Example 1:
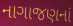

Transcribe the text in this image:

નાગાજણનાં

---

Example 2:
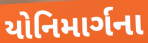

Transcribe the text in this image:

યોનિમાર્ગના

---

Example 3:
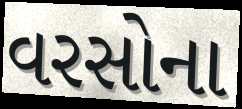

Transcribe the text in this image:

વરસોના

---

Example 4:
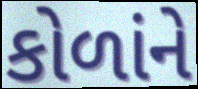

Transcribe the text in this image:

કોળાંને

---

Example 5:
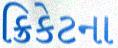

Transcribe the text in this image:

ક્રિકેટના